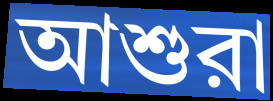
আশুরা